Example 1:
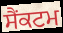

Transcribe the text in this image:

ਸੈੰਕਟਮ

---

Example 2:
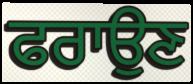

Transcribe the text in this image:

ਫਰਾਉਣ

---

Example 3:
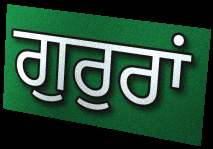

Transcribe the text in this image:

ਗੁਰੁਰਾਂ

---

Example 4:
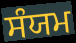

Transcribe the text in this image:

ਸੰਯਮ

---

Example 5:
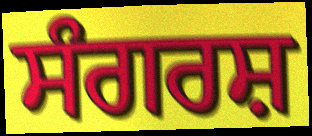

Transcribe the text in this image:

ਸੰਗਰਸ਼